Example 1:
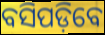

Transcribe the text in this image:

ବସିପଡ଼ିବେ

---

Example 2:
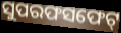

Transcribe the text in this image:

ସୁପରଫସଫେଟ୍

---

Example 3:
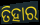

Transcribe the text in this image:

ତିହାର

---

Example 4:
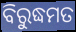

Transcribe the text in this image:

ବିରୁଦ୍ଧମତ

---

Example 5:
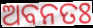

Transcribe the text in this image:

ଅବନତଃ